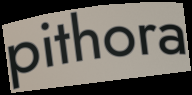
pithora